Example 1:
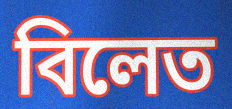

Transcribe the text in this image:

বিলেত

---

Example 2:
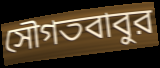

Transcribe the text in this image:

সৌগতবাবুর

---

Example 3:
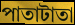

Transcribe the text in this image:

পাতাটাতা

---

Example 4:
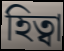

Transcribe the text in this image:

হিত্বা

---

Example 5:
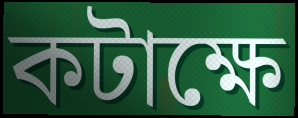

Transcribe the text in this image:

কটাক্ষে